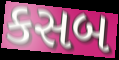
કસબ